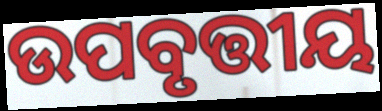
ଉପବୃତ୍ତୀୟ